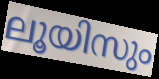
ലൂയിസും